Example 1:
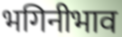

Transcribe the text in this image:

भगिनीभाव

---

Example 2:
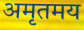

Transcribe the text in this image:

अमृतमय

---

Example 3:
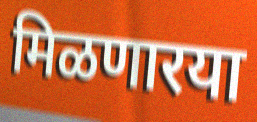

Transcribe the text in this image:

मिळणारया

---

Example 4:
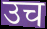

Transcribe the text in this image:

उच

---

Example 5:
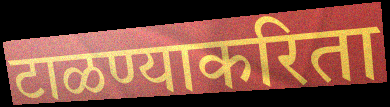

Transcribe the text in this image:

टाळण्याकरिता